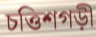
চত্তিশগড়ী